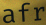
afr